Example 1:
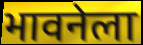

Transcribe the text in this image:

भावनेला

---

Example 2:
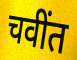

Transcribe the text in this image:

चवींत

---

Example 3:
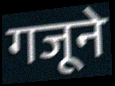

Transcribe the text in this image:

गजूने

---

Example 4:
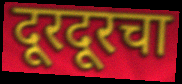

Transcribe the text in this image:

दूरदूरचा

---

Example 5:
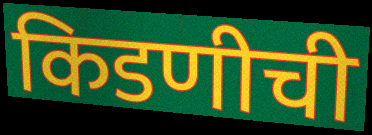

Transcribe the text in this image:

किडणीची